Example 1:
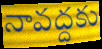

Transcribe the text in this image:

నావద్దకు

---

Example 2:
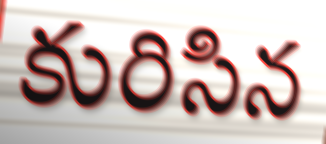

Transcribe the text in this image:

కురిసిన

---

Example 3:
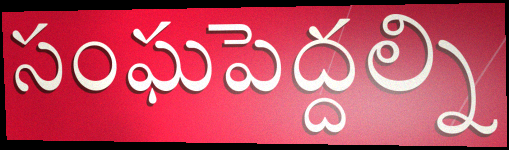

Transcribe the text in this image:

సంఘపెద్దల్ని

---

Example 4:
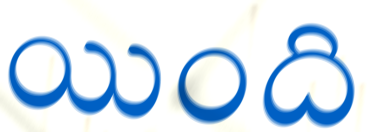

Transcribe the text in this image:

యింది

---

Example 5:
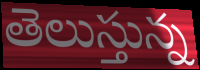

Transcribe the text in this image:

తెలుస్తున్న